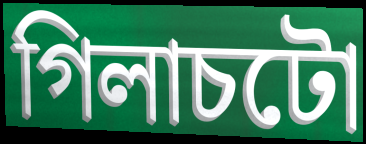
গিলাচটো